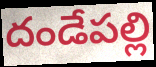
దండేపల్లి